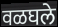
वळघले